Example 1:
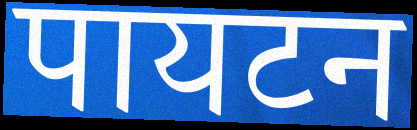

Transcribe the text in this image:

पायटन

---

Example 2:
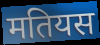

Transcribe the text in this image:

मतियस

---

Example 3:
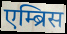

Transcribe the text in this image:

एम्ब्रिस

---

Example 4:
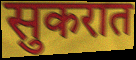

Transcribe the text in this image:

सुकरात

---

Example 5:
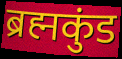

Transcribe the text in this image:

ब्रह्मकुंड